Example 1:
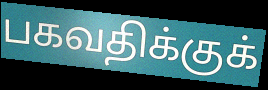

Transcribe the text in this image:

பகவதிக்குக்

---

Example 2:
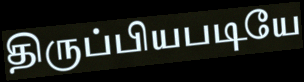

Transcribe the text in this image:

திருப்பியபடியே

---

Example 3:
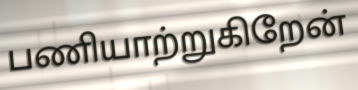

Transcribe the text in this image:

பணியாற்றுகிறேன்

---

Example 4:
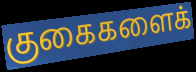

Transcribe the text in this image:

குகைகளைக்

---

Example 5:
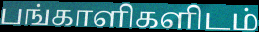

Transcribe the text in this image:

பங்காளிகளிடம்